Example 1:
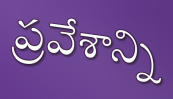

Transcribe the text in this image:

ప్రవేశాన్ని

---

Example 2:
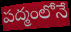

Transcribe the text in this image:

పద్మంలోనే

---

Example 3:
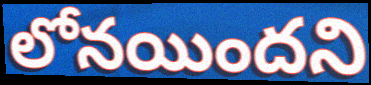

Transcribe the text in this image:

లోనయిందని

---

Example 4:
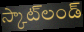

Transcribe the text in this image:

స్కాట్‌లండ్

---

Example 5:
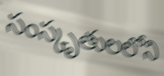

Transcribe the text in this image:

సంస్కృతులలోని